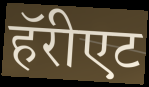
हॅरीएट